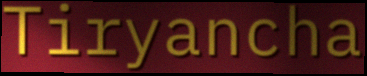
Tiryancha